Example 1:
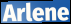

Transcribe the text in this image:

Arlene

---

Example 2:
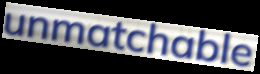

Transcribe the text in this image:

unmatchable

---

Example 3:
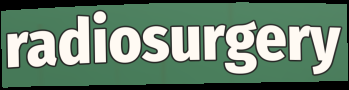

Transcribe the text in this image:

radiosurgery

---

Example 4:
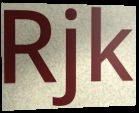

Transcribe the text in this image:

Rjk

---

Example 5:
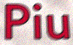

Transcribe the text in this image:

Piu